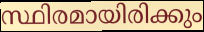
സ്ഥിരമായിരിക്കും